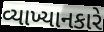
વ્યાખ્યાનકારે